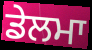
ਡੇਲਮਾ